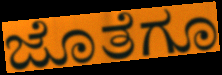
ಜೊತೆಗೂ